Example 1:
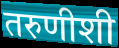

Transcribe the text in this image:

तरुणीशी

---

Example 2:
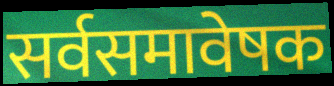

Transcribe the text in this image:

सर्वसमावेषक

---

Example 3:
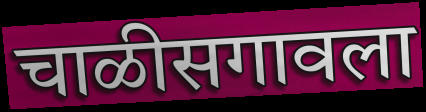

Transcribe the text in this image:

चाळीसगावला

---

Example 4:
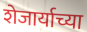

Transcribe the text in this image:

शेजार्याच्या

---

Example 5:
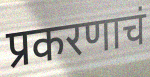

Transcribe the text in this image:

प्रकरणाचं